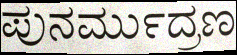
ಪುನರ್ಮುದ್ರಣ